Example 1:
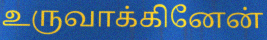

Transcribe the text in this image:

உருவாக்கினேன்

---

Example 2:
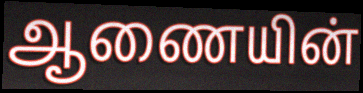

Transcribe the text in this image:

ஆணையின்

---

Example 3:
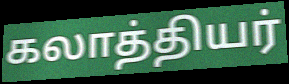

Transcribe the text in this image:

கலாத்தியர்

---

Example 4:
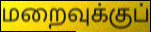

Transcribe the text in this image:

மறைவுக்குப்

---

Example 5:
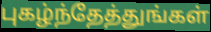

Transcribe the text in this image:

புகழ்ந்தேத்துங்கள்